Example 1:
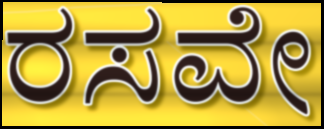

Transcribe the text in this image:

ರಸವೇ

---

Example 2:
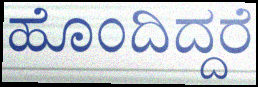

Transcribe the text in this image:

ಹೊಂದಿದ್ದರೆ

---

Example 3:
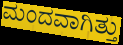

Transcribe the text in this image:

ಮಂದವಾಗಿತ್ತು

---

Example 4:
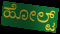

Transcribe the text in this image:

ಹೋಲ್ಟ್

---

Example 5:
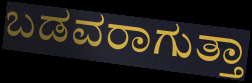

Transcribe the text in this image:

ಬಡವರಾಗುತ್ತಾ